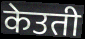
केउती